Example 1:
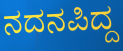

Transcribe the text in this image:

ನದನಪಿದ್ದ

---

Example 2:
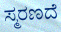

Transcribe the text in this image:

ಸ್ಮರಣದೆ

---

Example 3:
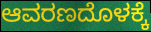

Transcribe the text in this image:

ಆವರಣದೊಳಕ್ಕೆ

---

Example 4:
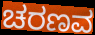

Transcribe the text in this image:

ಚರಣವ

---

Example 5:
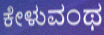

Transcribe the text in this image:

ಕೇಳುವಂಥ